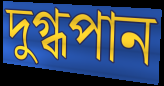
দুগ্ধপান